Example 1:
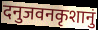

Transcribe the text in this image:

दनुजवनकृशानुं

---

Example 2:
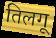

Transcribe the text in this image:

तिलगू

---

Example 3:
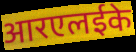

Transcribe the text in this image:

आरएलईके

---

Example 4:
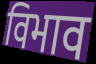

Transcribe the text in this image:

विभाव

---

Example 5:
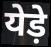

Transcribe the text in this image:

येड़े